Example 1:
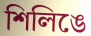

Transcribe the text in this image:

শিলিঙে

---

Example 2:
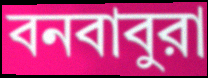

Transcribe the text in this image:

বনবাবুরা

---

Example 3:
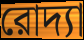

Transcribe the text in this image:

রোদ্যা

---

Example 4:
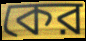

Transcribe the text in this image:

কের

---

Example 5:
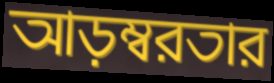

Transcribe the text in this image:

আড়ম্বরতার